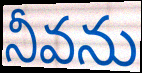
నీవను